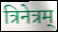
त्रिनेत्रम्